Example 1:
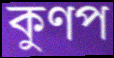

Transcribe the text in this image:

কুণপ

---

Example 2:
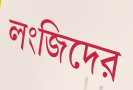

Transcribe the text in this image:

লংজিদের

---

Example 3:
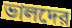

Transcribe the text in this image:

ভালদের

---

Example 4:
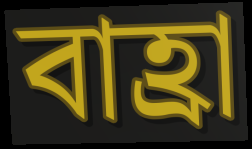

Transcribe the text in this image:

বাহ্রা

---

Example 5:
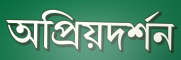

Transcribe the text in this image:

অপ্রিয়দর্শন